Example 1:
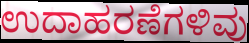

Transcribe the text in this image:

ಉದಾಹರಣೆಗಳಿವು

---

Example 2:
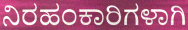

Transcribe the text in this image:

ನಿರಹಂಕಾರಿಗಳಾಗಿ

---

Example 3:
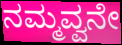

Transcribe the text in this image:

ನಮ್ಮವ್ವನೇ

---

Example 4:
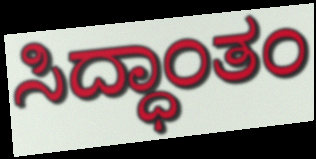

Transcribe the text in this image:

ಸಿದ್ಧಾಂತಂ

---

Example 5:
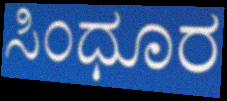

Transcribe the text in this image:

ಸಿಂಧೂರ